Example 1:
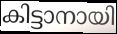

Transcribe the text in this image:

കിട്ടാനായി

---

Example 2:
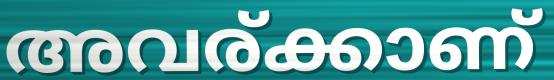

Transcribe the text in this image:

അവര്ക്കാണ്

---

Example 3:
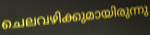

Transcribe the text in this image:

ചെലവഴിക്കുമായിരുന്നു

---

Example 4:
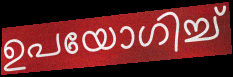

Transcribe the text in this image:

ഉപയോഗിച്ച്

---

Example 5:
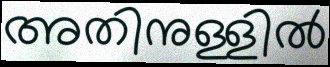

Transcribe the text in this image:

അതിനുള്ളിൽ